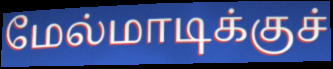
மேல்மாடிக்குச்